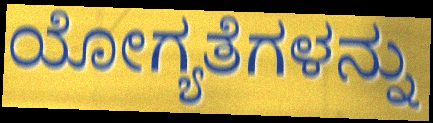
ಯೋಗ್ಯತೆಗಳನ್ನು